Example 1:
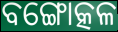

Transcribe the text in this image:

ବଙ୍ଗୋତ୍କଳ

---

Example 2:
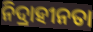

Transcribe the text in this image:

ନିଦ୍ରାହୀନତା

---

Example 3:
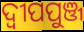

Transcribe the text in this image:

ଦ୍ୱୀପପୁଞ୍ଜ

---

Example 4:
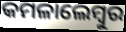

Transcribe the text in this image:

କମଳାଲେମ୍ବୁର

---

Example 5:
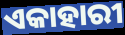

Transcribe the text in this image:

ଏକାହାରୀ